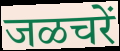
जळचरें